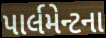
પાર્લમેન્ટના